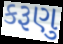
કરૂણુ